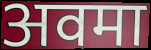
अवमा